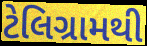
ટેલિગ્રામથી